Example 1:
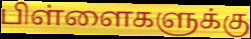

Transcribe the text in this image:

பிள்ளைகளுக்கு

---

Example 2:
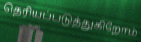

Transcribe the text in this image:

தெரியப்படுத்துகிறோம்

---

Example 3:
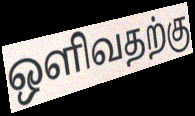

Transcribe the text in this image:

ஒளிவதற்கு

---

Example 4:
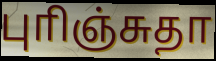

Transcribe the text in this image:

புரிஞ்சுதா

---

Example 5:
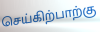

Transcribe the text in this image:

செய்கிற்பாற்கு